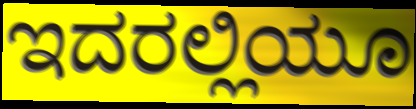
ಇದರಲ್ಲಿಯೂ